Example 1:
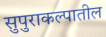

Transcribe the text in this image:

सुपुराकल्पातील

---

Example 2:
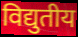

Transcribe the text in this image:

विद्युतीय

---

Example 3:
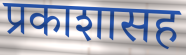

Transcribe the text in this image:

प्रकाशासह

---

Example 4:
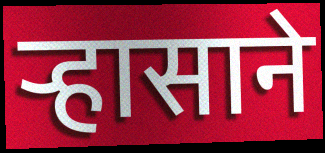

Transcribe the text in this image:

ऱ्हासाने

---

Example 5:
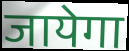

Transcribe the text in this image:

जायेगा